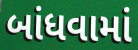
બાંધવામાં